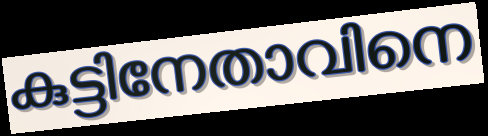
കുട്ടിനേതാവിനെ